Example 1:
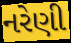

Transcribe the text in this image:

નરેણી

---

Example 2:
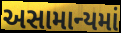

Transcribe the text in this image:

અસામાન્યમાં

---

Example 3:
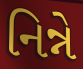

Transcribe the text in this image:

નિન્ને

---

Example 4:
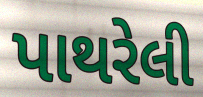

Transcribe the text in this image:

પાથરેલી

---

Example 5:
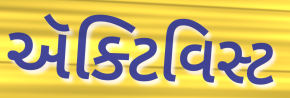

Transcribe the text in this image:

ઍક્ટિવિસ્ટ